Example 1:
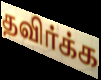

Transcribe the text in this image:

தவிர்க்க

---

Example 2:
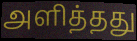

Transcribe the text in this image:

அளித்தது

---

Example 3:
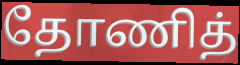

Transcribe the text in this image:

தோணித்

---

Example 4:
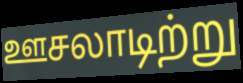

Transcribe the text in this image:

ஊசலாடிற்று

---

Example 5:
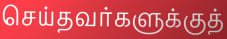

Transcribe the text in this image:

செய்தவர்களுக்குத்